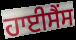
ਹਾਈਸੈਂਸ